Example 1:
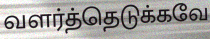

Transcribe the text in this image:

வளர்த்தெடுக்கவே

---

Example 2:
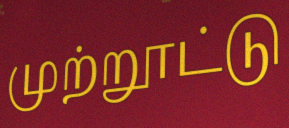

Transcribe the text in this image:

முற்றூட்டு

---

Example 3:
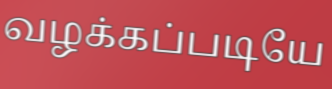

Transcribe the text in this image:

வழக்கப்படியே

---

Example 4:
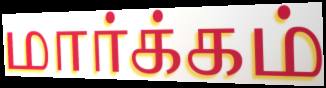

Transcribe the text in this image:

மார்க்கம்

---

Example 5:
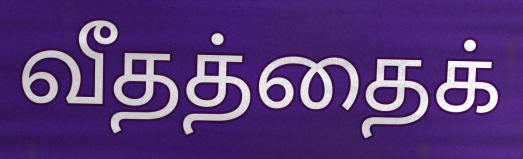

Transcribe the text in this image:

வீதத்தைக்